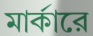
মার্কারে